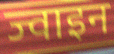
ज्वाइन